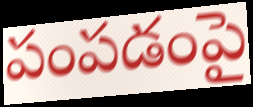
పంపడంపై